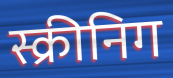
स्क्रीनिग